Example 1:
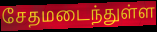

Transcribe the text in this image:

சேதமடைந்துள்ள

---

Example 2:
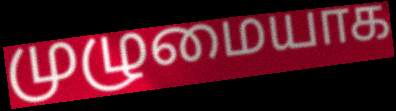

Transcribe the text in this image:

முழுமையாக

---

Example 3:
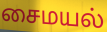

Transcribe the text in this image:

சைமயல்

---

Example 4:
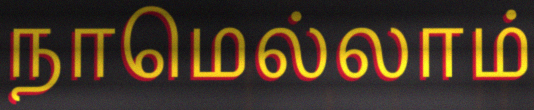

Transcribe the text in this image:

நாமெல்லாம்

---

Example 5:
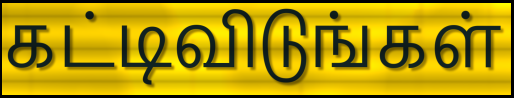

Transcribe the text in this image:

கட்டிவிடுங்கள்